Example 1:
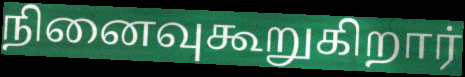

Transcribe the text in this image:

நினைவுகூறுகிறார்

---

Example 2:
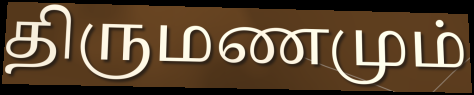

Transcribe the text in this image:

திருமணமும்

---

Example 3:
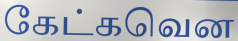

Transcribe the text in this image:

கேட்கவென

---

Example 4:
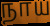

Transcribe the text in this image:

நாய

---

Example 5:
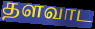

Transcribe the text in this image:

தளவாட